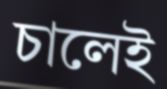
চালেই